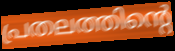
പ്രതലത്തിന്റെ